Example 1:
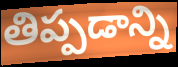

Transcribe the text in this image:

తిప్పడాన్ని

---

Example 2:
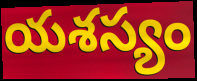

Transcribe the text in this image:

యశస్యం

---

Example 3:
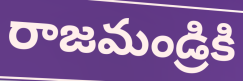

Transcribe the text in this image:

రాజమండ్రికి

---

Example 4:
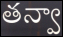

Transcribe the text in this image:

తన్వా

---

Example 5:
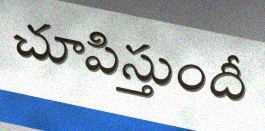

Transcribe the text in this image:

చూపిస్తుందీ